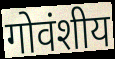
गोवंशीय